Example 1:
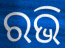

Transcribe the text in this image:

ରଭି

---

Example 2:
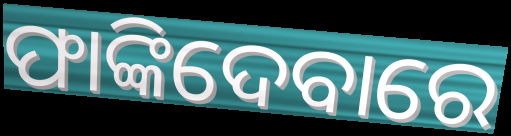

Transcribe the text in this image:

ଫାଙ୍କିଦେବାରେ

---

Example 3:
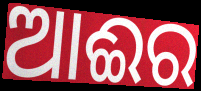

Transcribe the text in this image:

ଆଈର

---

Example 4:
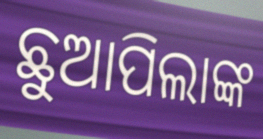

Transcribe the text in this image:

ଛୁଆପିଲାଙ୍କ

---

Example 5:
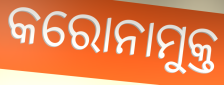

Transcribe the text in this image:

କରୋନାମୁକ୍ତ